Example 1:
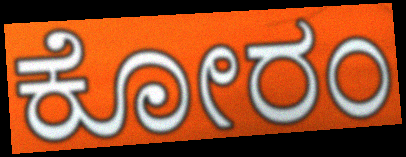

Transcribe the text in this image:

ಕೋರಂ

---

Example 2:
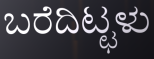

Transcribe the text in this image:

ಬರೆದಿಟ್ಟಳು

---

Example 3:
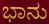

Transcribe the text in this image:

ಭಾನು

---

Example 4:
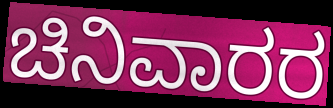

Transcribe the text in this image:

ಚಿನಿವಾರರ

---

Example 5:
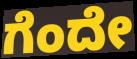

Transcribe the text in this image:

ಗೆಂದೇ